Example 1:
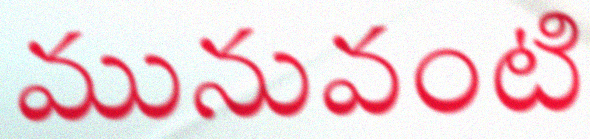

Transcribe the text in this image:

మునువంటి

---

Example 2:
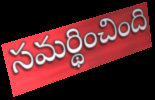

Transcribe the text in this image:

సమర్థించింది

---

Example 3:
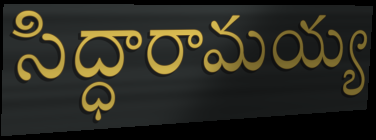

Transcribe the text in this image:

సిద్ధారామయ్య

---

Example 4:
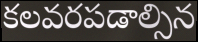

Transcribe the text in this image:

కలవరపడాల్సిన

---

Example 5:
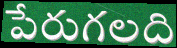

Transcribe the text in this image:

పేరుగలది